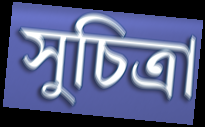
সুচিত্রা